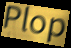
Plop